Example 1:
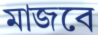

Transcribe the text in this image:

মাজবে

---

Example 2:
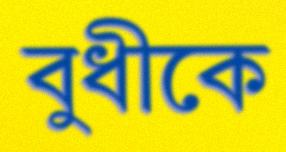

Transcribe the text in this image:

বুধীকে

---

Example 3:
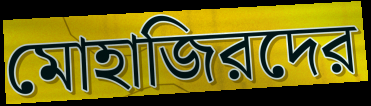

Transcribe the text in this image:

মোহাজিরদের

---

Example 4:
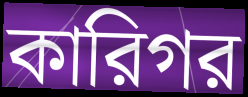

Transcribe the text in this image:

কারিগর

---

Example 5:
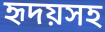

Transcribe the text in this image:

হৃদয়সহ